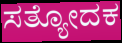
ಸತ್ಯೋದಕ